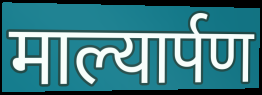
माल्यार्पण